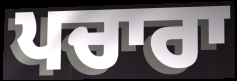
ਪਚਾਰਾ